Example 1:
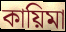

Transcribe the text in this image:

কায়িমা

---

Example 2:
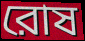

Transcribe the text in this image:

রোষ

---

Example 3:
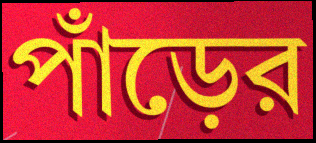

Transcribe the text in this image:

পাঁড়ের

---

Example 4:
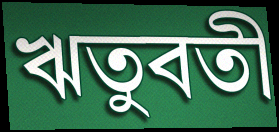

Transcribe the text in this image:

ঋতুবতী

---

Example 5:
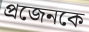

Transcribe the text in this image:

প্রজেনকে